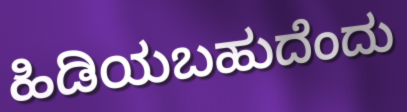
ಹಿಡಿಯಬಹುದೆಂದು